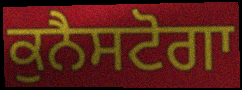
ਕੁਨੈਸਟੋਗਾ